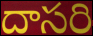
దాసరి